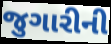
જુગારીની